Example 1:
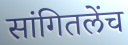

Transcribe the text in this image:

सांगितलेंच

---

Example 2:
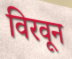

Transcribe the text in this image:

विरवून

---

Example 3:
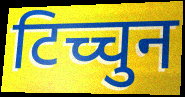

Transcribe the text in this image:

टिच्चुन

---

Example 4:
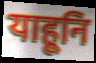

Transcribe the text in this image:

याहूनि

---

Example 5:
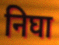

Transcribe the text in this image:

निघा